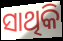
ସାଥିକି